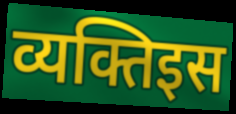
व्यक्तिइस